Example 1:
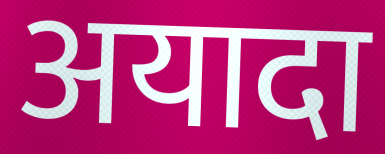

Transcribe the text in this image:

अयादा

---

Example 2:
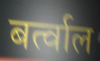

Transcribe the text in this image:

बर्त्वाल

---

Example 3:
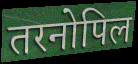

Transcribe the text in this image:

तरनोपिल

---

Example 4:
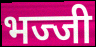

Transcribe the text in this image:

भज्जी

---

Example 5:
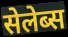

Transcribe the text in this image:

सेलेब्स